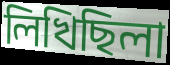
লিখিছিলা